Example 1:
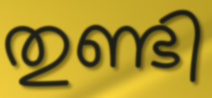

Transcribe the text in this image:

തുണ്ടി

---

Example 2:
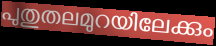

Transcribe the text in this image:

പുതുതലമുറയിലേക്കും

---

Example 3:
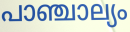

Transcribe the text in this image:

പാഞ്ചാല്യം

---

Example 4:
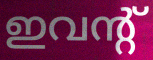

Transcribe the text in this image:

ഇവന്റ്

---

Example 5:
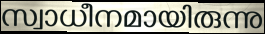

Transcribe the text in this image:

സ്വാധീനമായിരുന്നു